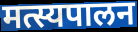
मत्स्यपालन